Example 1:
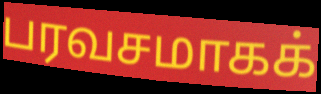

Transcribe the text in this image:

பரவசமாகக்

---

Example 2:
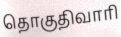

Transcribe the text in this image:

தொகுதிவாரி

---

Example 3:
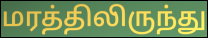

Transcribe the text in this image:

மரத்திலிருந்து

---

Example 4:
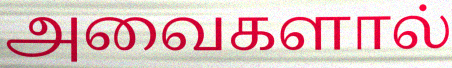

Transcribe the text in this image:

அவைகளால்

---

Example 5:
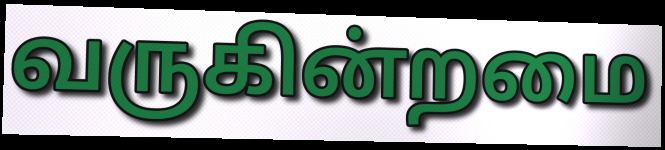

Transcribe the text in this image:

வருகின்றமை